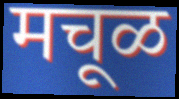
मचूळ